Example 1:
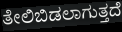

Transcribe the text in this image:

ತೇಲಿಬಿಡಲಾಗುತ್ತದೆ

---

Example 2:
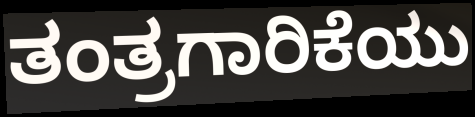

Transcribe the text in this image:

ತಂತ್ರಗಾರಿಕೆಯು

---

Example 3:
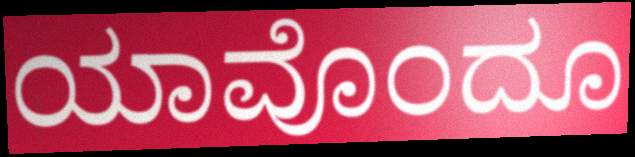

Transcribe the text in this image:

ಯಾವೊಂದೂ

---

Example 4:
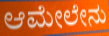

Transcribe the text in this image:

ಆಮೇಲೇನು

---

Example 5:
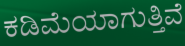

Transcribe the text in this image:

ಕಡಿಮೆಯಾಗುತ್ತಿವೆ